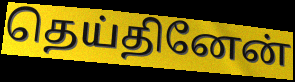
தெய்தினேன்